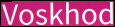
Voskhod